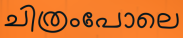
ചിത്രംപോലെ